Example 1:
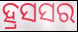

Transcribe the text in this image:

ହ୍ରସସର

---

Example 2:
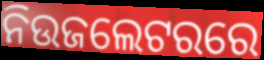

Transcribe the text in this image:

ନିଉଜଲେଟରରେ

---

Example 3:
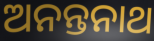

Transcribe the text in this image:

ଅନନ୍ତନାଥ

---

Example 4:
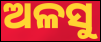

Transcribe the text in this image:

ଅଳସୁ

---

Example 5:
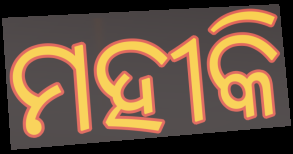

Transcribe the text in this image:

ମହୀକି